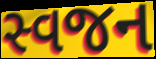
સ્વજન